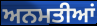
ਅਨਮਤੀਆਂ